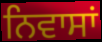
ਨਿਵਾਸਾਂ